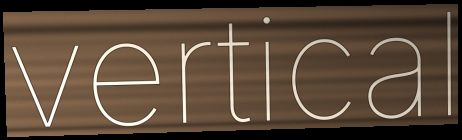
vertical